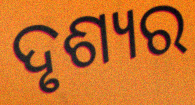
ଦୃଶ୍ୟର